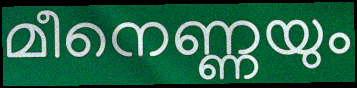
മീനെണ്ണയും